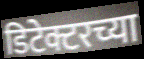
डिटेक्टरच्या